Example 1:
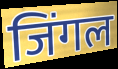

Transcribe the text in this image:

जिंगल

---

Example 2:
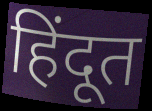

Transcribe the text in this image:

हिंदूत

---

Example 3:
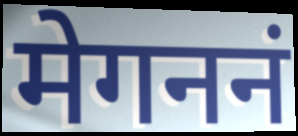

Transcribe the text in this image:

मेगननं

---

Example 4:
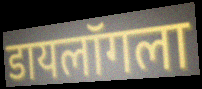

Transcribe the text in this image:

डायलॉगला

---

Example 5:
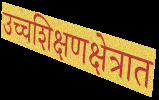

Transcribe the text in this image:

उच्चशिक्षणक्षेत्रात